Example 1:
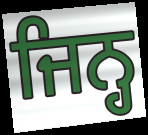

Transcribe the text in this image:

ਜਿਨ੍ਹ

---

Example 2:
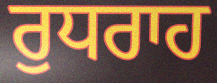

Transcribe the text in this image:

ਰੁਧਰਾਹ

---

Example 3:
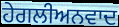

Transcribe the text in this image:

ਹੇਗਲੀਅਨਵਾਦ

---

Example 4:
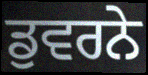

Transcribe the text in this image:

ਡੁਵਰਨੇ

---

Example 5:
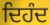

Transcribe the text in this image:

ਦਿਹੰਦ